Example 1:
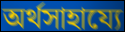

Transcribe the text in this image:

অর্থসাহায্যে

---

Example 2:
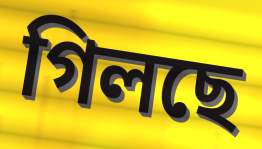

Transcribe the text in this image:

গিলছে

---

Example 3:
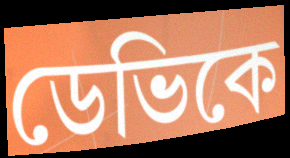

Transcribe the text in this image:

ডেভিকে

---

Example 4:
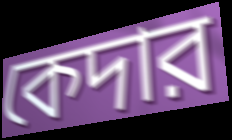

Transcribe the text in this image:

কেদার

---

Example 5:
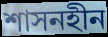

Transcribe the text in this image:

শাসনহীন